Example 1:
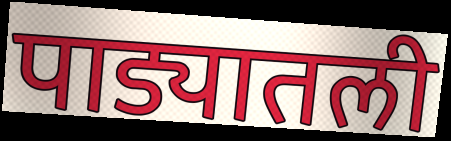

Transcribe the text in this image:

पाड्यातली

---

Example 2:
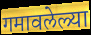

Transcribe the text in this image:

गमावलेल्या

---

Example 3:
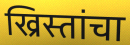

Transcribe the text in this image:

ख्रिस्तांचा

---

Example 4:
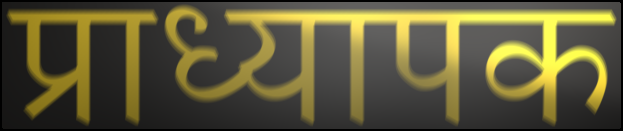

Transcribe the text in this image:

प्राध्यापक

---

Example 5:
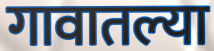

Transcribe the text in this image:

गावातल्या